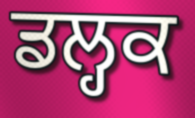
ਡਲ੍ਹਕ